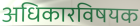
अधिकारविषयक